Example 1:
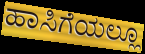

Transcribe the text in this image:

ಹಾಸಿಗೆಯಲ್ಲೂ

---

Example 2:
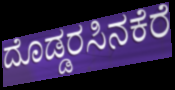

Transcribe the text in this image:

ದೊಡ್ಡರಸಿನಕೆರೆ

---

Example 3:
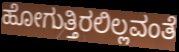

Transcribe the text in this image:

ಹೋಗುತ್ತಿರಲಿಲ್ಲವಂತೆ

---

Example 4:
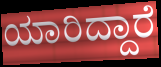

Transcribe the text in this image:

ಯಾರಿದ್ದಾರೆ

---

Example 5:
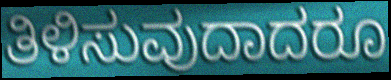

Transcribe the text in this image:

ತಿಳಿಸುವುದಾದರೂ